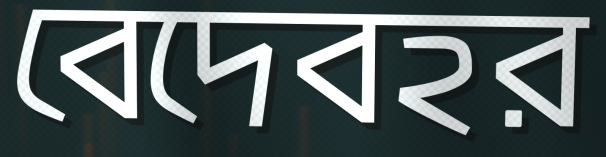
বেদেবহর